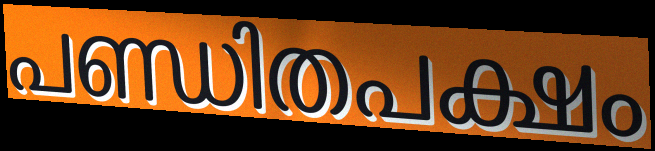
പണ്ഡിതപക്ഷം